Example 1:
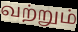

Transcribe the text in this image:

வற்றும்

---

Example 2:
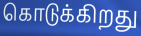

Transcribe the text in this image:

கொடுக்கிறது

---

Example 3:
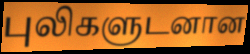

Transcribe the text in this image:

புலிகளுடனான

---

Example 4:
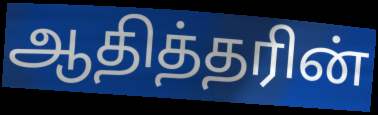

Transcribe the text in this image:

ஆதித்தரின்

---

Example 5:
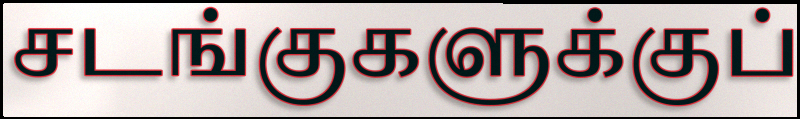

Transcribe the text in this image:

சடங்குகளுக்குப்